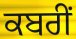
ਕਬਰੀਂ